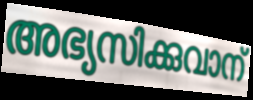
അഭ്യസിക്കുവാന്